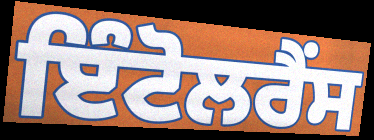
ਇੰਟੋਲਰੈਂਸ